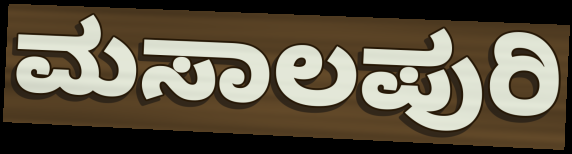
ಮಸಾಲಪುರಿ